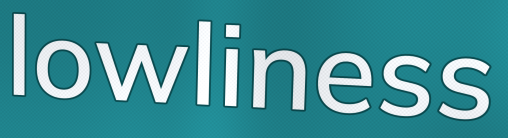
lowliness